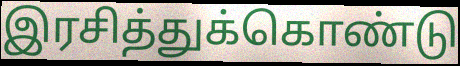
இரசித்துக்கொண்டு